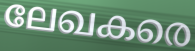
ലേഖകരെ